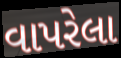
વાપરેલા